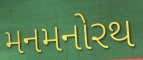
મનમનોરથ